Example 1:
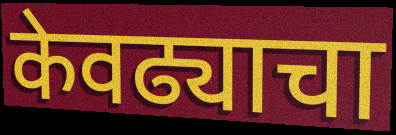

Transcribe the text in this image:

केवढ्याचा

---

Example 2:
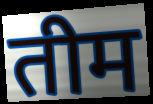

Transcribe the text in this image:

तीम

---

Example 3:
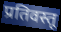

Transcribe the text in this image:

प्रतिवस्तू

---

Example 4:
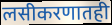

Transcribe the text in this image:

लसीकरणातही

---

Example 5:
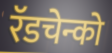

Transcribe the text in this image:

रॅडचेन्को